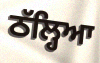
ਠੱਲ੍ਹਿਆ